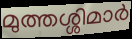
മുത്തശ്ശിമാർ